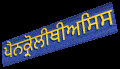
ਪੈਨਕ੍ਰੋਲੀਥੀਅਸਿਸ